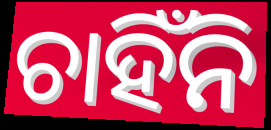
ଚାହିଁନି